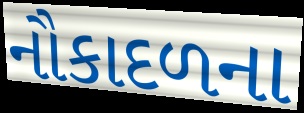
નૌકાદળના